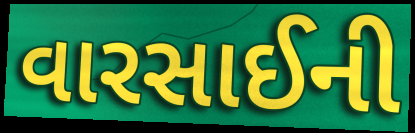
વારસાઈની